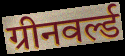
ग्रीनवर्ल्ड